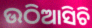
ଉଠିଆସିଚି